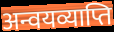
अन्वयव्याप्ति